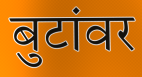
बुटांवर